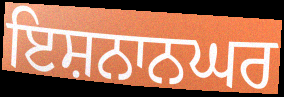
ਇਸ਼ਨਾਨਘਰ